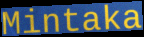
Mintaka